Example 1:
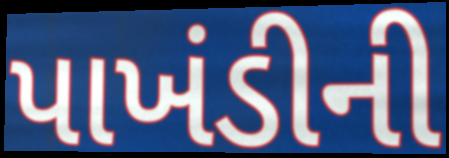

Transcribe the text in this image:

પાખંડીની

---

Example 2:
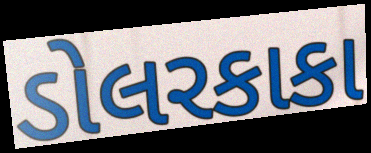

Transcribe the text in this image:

ડોલરકાકા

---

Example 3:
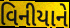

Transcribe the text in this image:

વિનીયાને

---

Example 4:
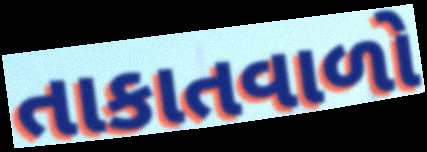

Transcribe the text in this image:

તાકાતવાળો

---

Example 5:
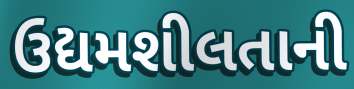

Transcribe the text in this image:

ઉદ્યમશીલતાની